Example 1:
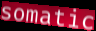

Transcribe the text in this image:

somatic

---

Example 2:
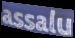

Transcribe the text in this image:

assalu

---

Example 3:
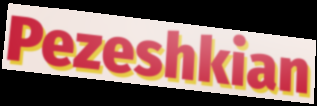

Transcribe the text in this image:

Pezeshkian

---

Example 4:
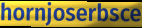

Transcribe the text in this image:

hornjoserbsce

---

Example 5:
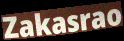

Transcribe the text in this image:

Zakasrao